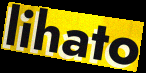
lihato